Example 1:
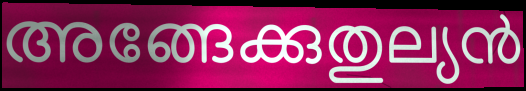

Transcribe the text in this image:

അങ്ങേക്കുതുല്യൻ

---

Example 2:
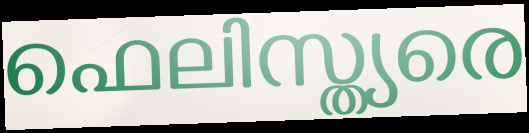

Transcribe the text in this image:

ഫെലിസ്ത്യരെ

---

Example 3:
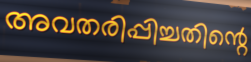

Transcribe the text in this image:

അവതരിപ്പിച്ചതിന്റെ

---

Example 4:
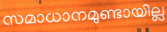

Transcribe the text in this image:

സമാധാനമുണ്ടായില്ല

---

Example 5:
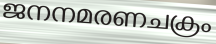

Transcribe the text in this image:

ജനനമരണചക്രം